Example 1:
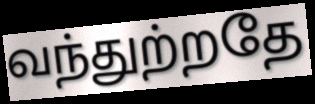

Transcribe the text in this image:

வந்துற்றதே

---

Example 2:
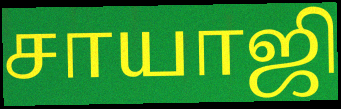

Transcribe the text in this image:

சாயாஜி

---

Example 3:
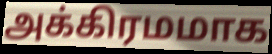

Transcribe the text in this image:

அக்கிரமமாக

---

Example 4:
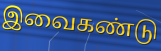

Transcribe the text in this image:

இவைகண்டு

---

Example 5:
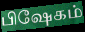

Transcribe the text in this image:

பிஷேகம்